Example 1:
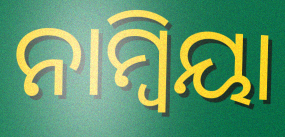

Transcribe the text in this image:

ନାମ୍ୱିୟା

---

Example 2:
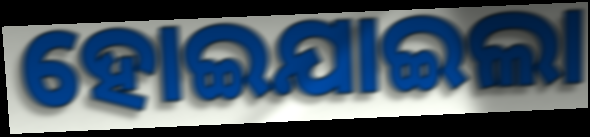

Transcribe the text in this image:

ହୋଇଯାଇଲା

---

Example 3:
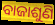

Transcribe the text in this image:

ବାଜାଶୁଣି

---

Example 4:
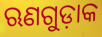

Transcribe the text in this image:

ଋଣଗୁଡ଼ାକ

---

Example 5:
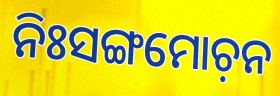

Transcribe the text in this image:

ନିଃସଙ୍ଗମୋଚ଼ନ